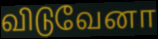
விடுவேனா